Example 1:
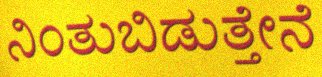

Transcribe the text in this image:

ನಿಂತುಬಿಡುತ್ತೇನೆ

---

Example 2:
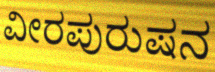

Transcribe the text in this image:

ವೀರಪುರುಷನ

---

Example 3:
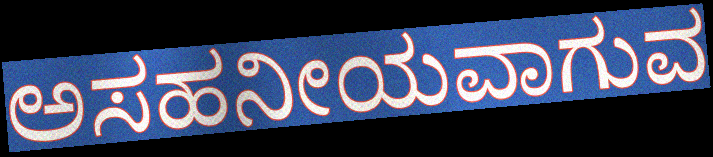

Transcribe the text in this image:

ಅಸಹನೀಯವಾಗುವ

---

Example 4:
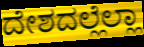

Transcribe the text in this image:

ದೇಶದಲ್ಲೆಲ್ಲಾ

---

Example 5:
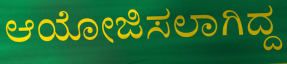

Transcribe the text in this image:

ಆಯೋಜಿಸಲಾಗಿದ್ದ